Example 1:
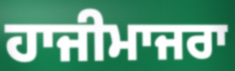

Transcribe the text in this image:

ਹਾਜੀਮਾਜਰਾ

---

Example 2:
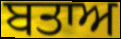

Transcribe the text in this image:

ਬਤਾਅ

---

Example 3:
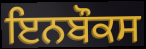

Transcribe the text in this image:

ਇਨਬੌਕਸ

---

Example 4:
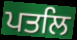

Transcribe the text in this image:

ਪਤਲਿ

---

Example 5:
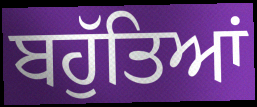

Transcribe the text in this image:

ਬਹੁੱਤਿਆਂ